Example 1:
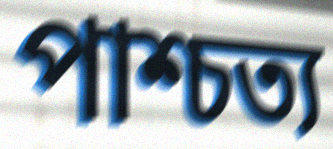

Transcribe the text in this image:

পাশ্চত্য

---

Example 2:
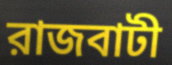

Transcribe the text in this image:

রাজবাটী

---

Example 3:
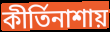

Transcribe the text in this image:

কীর্তিনাশায়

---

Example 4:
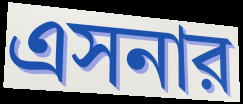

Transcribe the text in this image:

এসনার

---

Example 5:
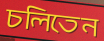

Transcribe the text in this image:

চলিতেন